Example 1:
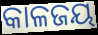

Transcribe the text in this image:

କାଳଜୟ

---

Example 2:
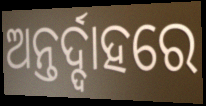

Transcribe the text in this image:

ଅନ୍ତର୍ଦ୍ଦାହରେ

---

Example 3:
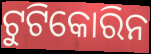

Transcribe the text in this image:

ଟୁଟିକୋରିନ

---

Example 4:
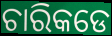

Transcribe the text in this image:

ଚାରିକଡେ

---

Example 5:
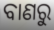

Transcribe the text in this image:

ବାଣରୁ